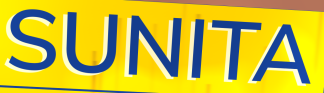
SUNITA